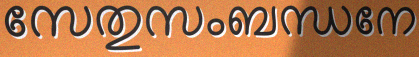
സേതുസംബന്ധനേ